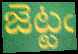
జెట్టఁ